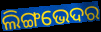
ଲିଙ୍ଗଭେଦର